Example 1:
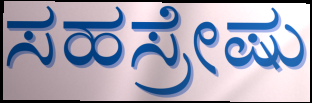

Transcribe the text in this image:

ಸಹಸ್ರೇಷು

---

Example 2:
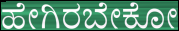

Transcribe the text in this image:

ಹೇಗಿರಬೇಕೋ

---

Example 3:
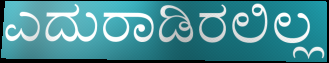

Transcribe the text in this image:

ಎದುರಾಡಿರಲಿಲ್ಲ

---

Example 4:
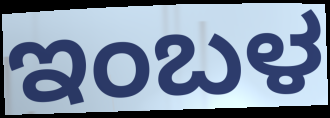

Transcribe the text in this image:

ಇಂಬಳ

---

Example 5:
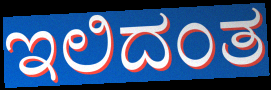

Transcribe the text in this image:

ಇಲಿದಂತ